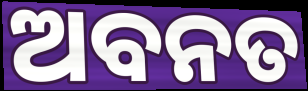
ଅବନତ